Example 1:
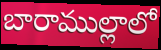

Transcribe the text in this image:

బారాముల్లాలో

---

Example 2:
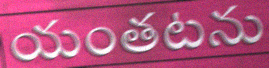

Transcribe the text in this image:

యంతటను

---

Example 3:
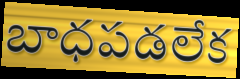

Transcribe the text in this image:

బాధపడలేక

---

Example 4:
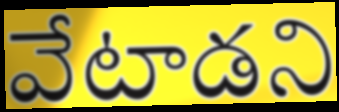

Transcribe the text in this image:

వేటాడని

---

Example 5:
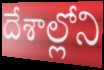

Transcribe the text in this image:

దేశాల్లోని